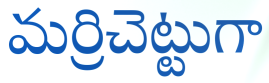
మర్రిచెట్టుగా